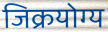
जिक्रयोग्य